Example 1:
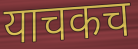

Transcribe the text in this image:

याचकच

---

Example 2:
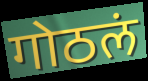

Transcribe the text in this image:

गोठलं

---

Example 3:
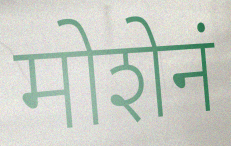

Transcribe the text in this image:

मोशेनं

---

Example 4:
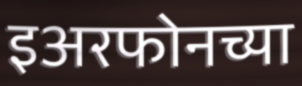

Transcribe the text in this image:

इअरफोनच्या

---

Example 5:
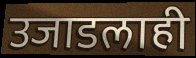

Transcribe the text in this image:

उजाडलाही